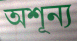
অশূন্য